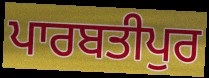
ਪਾਰਬਤੀਪੁਰ